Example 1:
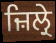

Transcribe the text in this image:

ਜ਼ਿਲ੍ਰੇ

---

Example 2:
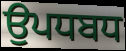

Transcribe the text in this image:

ਉਪਧਬਧ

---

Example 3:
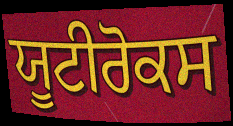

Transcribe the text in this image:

ਯੂਟੀਰੋਕਸ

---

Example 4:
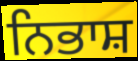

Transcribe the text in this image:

ਨਿਭਾਸ਼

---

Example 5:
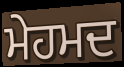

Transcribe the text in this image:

ਮੇਹਮਦ